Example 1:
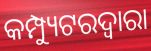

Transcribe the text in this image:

କମ୍ପ୍ୟୁଟରଦ୍ୱାରା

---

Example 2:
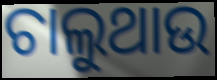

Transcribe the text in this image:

ଚାଲୁଥାଉ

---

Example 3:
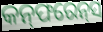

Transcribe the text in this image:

କନ୍‌ଫରେନ୍‌ସ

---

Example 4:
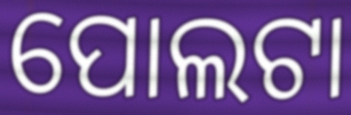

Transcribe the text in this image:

ପୋଲଟା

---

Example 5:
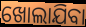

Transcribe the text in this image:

ଖୋଲାଯିବା